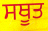
ਸਥੂਤ